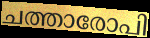
ചത്താരോപി